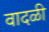
वादळी